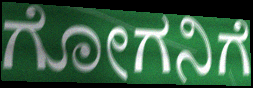
ಗೋಗನಿಗೆ